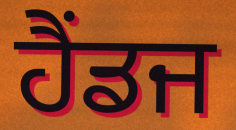
ਹੈਂਡਜ